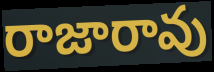
రాజారావు